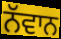
ਨੱਵਾਨ